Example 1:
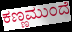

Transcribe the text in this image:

ಕಣ್ಣಮುಂದೆ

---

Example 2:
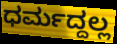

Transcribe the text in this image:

ಧರ್ಮದ್ದಲ್ಲ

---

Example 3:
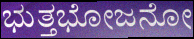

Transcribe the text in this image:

ಭುತ್ತಭೋಜನೋ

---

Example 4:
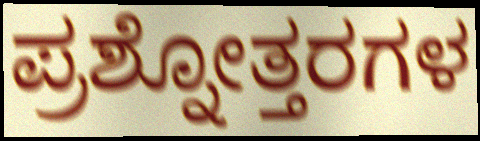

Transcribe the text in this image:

ಪ್ರಶ್ನೋತ್ತರಗಳ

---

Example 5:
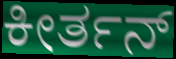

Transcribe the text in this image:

ಕೀರ್ತನ್